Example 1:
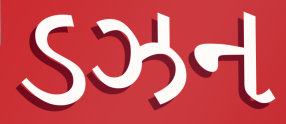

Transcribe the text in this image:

ડઝન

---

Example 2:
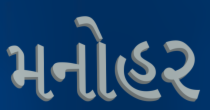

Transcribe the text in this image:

મનોહર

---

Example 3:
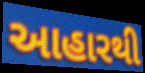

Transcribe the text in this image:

આહારથી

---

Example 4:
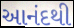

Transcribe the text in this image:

આનંદથી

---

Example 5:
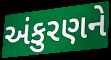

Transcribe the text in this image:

અંકુરણને